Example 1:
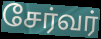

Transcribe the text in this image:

சேர்வர்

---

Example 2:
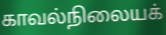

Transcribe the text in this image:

காவல்நிலையக்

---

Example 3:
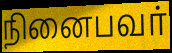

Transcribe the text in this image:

நினைபவர்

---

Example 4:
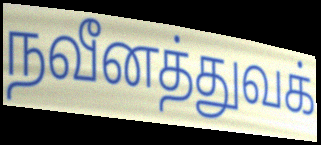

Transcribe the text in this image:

நவீனத்துவக்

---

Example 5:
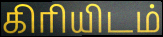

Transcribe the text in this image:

கிரியிடம்